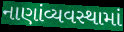
નાણાંવ્યવસ્થામાં